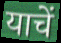
याचें